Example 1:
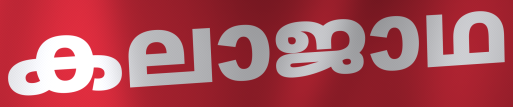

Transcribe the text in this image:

കലാജാഥ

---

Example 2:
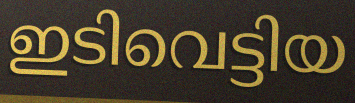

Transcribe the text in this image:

ഇടിവെട്ടിയ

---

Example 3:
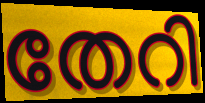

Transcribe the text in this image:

തേറി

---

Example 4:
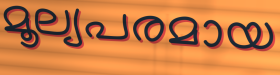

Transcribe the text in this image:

മൂല്യപരമായ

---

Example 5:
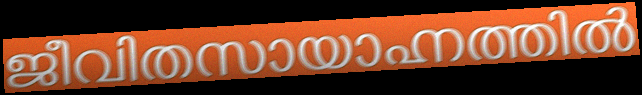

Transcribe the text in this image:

ജീവിതസായാഹ്നത്തിൽ